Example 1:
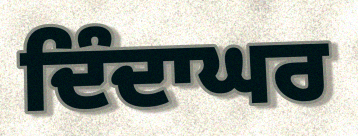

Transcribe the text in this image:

ਦਿੰਦਾਘਰ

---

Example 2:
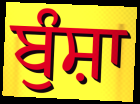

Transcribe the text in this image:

ਬੁੰਸ਼ਾ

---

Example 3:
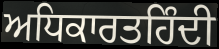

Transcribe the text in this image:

ਅਧਿਕਾਰਤਹਿੰਦੀ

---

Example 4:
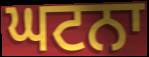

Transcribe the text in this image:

ਘਟਨਾ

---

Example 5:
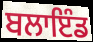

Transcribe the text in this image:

ਬਲਾਇੰਡ